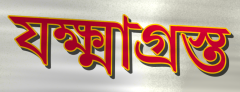
যক্ষ্মাগ্রস্ত